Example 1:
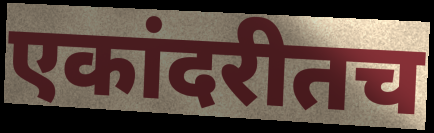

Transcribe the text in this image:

एकांदरीतच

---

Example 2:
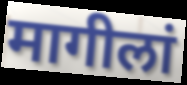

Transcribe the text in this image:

मागीलां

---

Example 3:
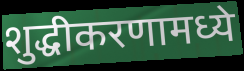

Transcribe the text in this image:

शुद्धीकरणामध्ये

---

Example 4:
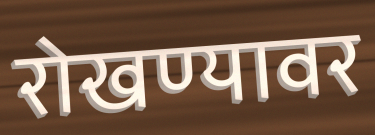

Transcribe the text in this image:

रोखण्यावर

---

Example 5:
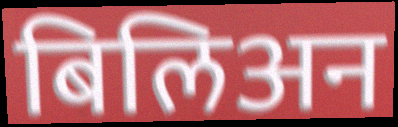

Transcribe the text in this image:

बिलिअन